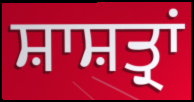
ਸ਼ਾਸ਼ਤ੍ਰਾਂ